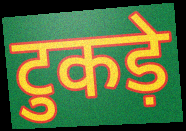
टुकड़े